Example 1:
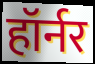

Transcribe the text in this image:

हॉर्नर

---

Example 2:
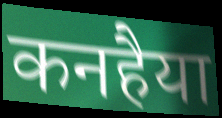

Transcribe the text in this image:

कनहैया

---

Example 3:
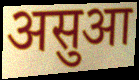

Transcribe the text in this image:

असुआ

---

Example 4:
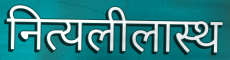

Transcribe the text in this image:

नित्यलीलास्थ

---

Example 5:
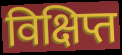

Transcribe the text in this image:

विक्षिप्त